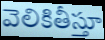
వెలికితీస్తూ